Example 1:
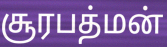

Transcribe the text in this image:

சூரபத்மன்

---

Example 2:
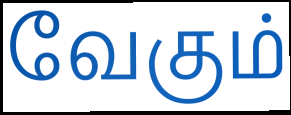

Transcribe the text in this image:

வேகும்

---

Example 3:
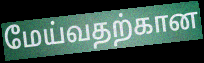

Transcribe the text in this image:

மேய்வதற்கான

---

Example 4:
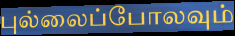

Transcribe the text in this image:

புல்லைப்போலவும்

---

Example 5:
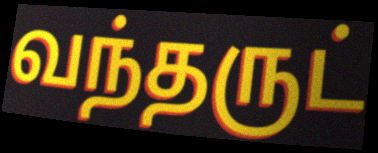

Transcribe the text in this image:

வந்தருட்